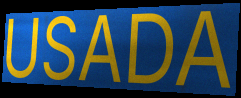
USADA